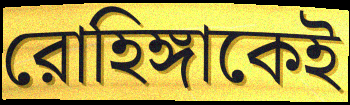
রোহিঙ্গাকেই